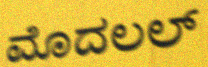
ಮೊದಲಲ್